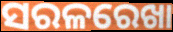
ସରଳରେଖା